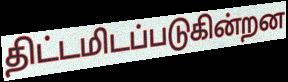
திட்டமிடப்படுகின்றன